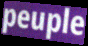
peuple